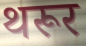
थरूर